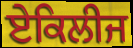
ਏਕਿਲੀਜ